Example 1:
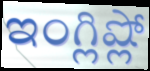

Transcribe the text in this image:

ఇంగ్లిష్లో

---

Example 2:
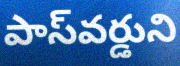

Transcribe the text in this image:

పాస్‌వర్డుని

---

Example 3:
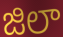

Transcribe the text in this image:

జిలా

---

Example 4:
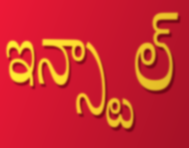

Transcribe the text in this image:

ఇన్స్టాల్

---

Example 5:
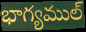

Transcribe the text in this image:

భాగ్యముల్